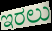
ಇರಲು